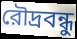
রৌদ্রবন্ধু